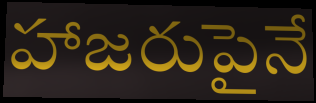
హాజరుపైనే